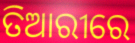
ତିଆରୀରେ